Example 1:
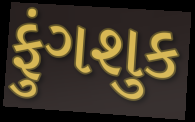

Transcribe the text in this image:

ફુંગશુક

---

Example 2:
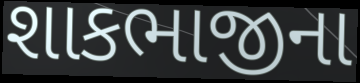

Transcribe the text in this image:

શાકભાજીના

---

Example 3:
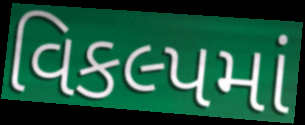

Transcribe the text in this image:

વિકલ્પમાં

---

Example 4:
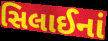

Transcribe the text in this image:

સિલાઈનાં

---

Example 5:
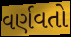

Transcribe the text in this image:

વર્ણવતો